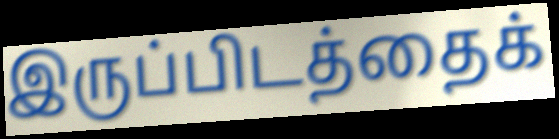
இருப்பிடத்தைக்